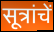
सूत्रांचें